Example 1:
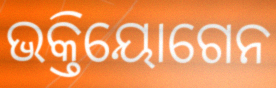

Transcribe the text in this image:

ଭକ୍ତିୟୋଗେନ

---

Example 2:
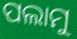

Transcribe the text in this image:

ପଲାମୁ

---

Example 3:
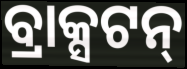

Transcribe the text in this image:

ବ୍ରାକ୍ସଟନ୍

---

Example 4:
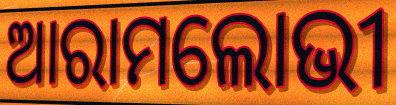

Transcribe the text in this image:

ଆରାମଲୋଭୀ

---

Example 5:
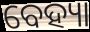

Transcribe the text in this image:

ବେହ୍ୟା